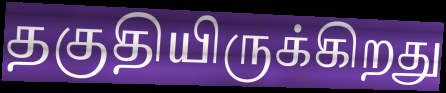
தகுதியிருக்கிறது